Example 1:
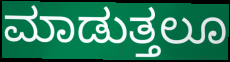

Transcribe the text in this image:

ಮಾಡುತ್ತಲೂ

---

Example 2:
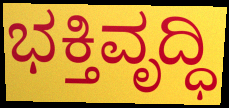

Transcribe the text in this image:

ಭಕ್ತಿವೃದ್ಧಿ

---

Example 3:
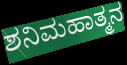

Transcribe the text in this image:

ಶನಿಮಹಾತ್ಮನ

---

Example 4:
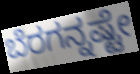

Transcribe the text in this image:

ಬೆರಗನ್ನಷ್ಟೇ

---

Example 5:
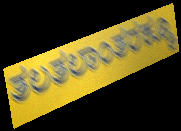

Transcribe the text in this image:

ತಲತಲಾಂತರಕ್ಕೂ